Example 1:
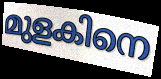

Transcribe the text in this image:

മുളകിനെ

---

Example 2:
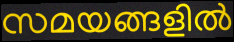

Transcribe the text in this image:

സമയങ്ങളിൽ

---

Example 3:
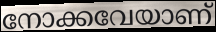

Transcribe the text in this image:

നോക്കവേയാണ്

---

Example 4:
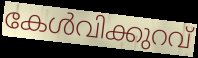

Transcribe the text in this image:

കേൾവിക്കുറവ്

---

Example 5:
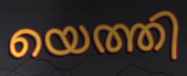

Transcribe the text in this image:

യെത്തി